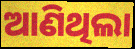
ଆଣିଥିଲା